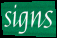
signs